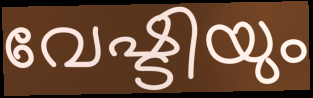
വേഷ്ടിയും